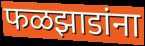
फळझाडांना